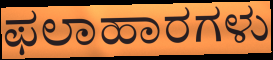
ಫಲಾಹಾರಗಳು